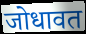
जोधावत